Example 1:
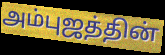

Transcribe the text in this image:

அம்புஜத்தின்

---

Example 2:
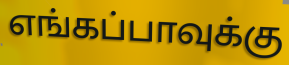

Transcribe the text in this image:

எங்கப்பாவுக்கு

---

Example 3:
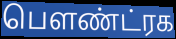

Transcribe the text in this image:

பௌண்ட்ரக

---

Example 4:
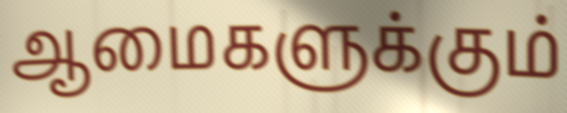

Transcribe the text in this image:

ஆமைகளுக்கும்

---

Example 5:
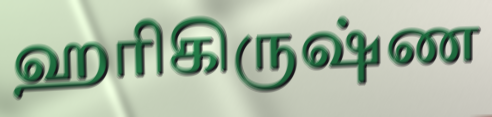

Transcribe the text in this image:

ஹரிகிருஷ்ண